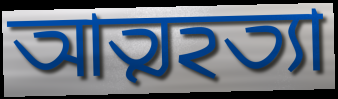
আত্মহত্যা